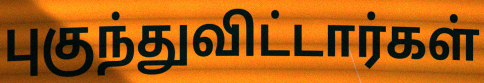
புகுந்துவிட்டார்கள்